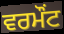
ਵਰਮੌਂਟ